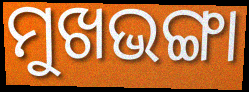
ମୁଖଭଙ୍ଗା